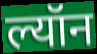
ल्यॉन